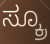
ಸ್ಕ್ರೂ